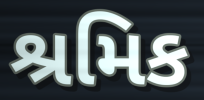
શ્રમિક